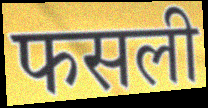
फसली